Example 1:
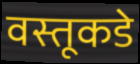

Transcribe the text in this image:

वस्तूकडे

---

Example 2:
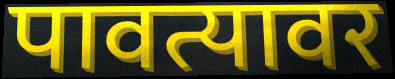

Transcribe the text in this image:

पावत्यावर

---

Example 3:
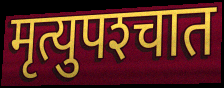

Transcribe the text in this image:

मृत्युपश्‍चात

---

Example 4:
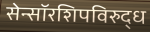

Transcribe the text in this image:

सेन्सॉरशिपविरुद्ध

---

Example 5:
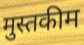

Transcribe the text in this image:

मुस्तकीम